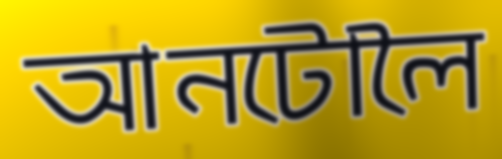
আনটোলৈ